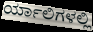
ರ್ಯಾಲಿಗಳಲ್ಲಿ